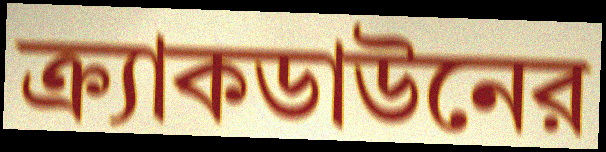
ক্র্যাকডাউনের